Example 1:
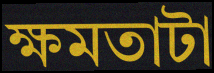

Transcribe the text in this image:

ক্ষমতাটা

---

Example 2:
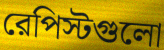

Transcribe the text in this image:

রেপিস্টগুলো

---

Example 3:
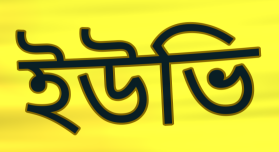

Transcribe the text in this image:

ইউভি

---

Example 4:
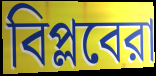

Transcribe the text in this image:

বিপ্লবেরা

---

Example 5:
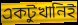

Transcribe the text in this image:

একটুখানিই